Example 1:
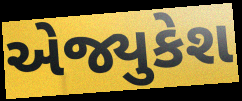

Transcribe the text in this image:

એજ્યુકેશ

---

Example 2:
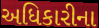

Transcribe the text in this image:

અધિકારીના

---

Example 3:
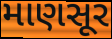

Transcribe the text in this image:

માણસૂર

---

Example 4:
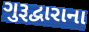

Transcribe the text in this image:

ગુરૂદ્વારાના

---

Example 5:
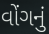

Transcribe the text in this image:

વોંગનું